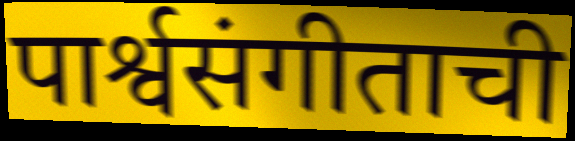
पार्श्वसंगीताची